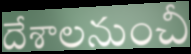
దేశాలనుంచీ